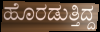
ಹೊರಡುತ್ತಿದ್ದ